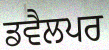
ਡਵੈਲਪਰ